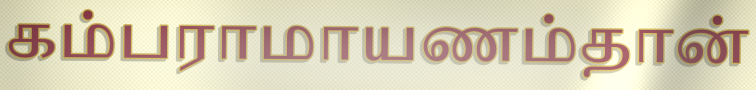
கம்பராமாயணம்தான்